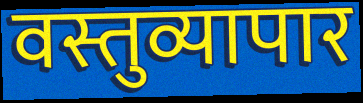
वस्तुव्यापार